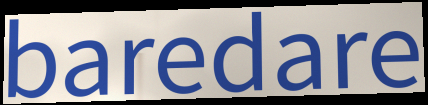
baredare